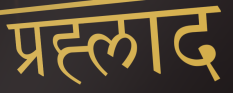
प्रह्लाद